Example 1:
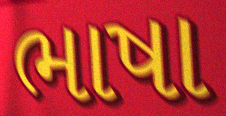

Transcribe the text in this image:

ભાષા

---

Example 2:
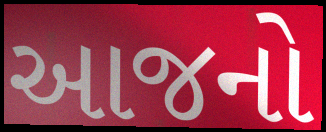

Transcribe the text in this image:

આજનો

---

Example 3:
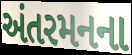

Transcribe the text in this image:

અંતરમનના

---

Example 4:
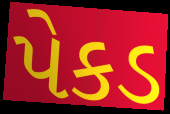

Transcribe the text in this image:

પેકડ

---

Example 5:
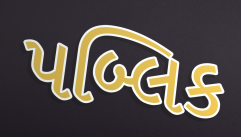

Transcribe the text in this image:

પબ્લિક